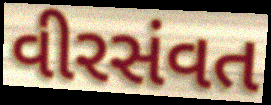
વીરસંવત